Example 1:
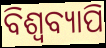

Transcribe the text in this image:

ବିଶ୍ବବ୍ୟାପି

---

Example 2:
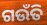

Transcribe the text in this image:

ଗଉଁତି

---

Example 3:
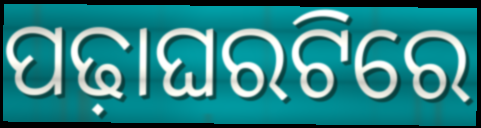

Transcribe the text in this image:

ପଢ଼ାଘରଟିରେ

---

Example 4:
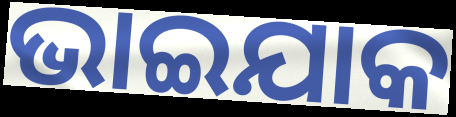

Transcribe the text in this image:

ଭାଇଯାକ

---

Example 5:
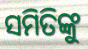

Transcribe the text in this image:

ସମିତିଙ୍କୁ